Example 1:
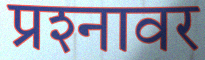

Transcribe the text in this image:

प्रश्नावर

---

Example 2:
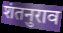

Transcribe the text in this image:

शंतनुराव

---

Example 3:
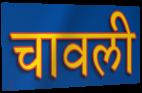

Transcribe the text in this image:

चावली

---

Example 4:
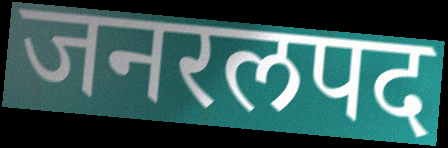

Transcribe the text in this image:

जनरलपद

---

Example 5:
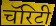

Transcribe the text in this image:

चॅरिटी